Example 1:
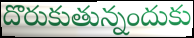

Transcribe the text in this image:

దొరుకుతున్నందుకు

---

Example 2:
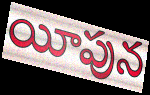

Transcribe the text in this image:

యీపున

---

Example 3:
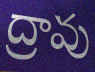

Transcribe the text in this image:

ద్రావు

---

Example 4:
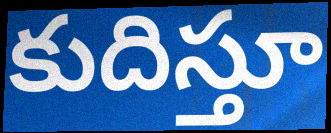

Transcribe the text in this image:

కుదిస్తూ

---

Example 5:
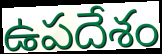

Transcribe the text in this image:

ఉపదేశం